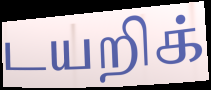
டயறிக்